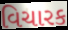
વિચારક